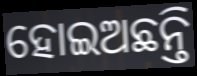
ହୋଇଅଛନ୍ତି